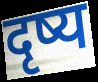
दृष्य